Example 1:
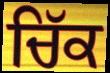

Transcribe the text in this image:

ਚਿੱਕ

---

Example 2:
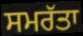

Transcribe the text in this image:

ਸਮਰੱਤਾ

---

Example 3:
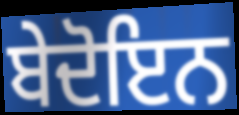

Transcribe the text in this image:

ਬੇਦੋਇਨ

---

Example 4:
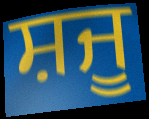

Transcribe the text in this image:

ਸ਼ਜੂ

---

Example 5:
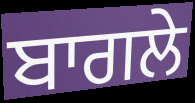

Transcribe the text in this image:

ਬਾਗਲੇ